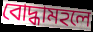
বোদ্ধামহলে